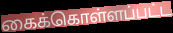
கைக்கொள்ளப்பட்ட